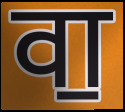
वा॒